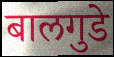
बालगुडे